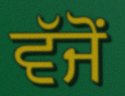
ਵੱਜੋਂ